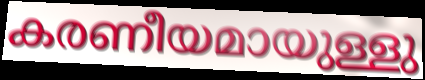
കരണീയമായുള്ളു